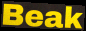
Beak